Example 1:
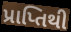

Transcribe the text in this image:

પ્રાપ્તિથી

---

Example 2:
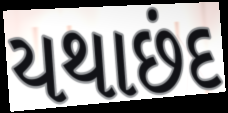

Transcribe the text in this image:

યથાછંદ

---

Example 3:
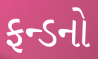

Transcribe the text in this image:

ફન્ડનો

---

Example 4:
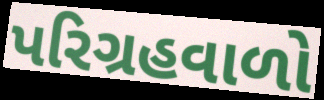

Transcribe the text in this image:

પરિગ્રહવાળો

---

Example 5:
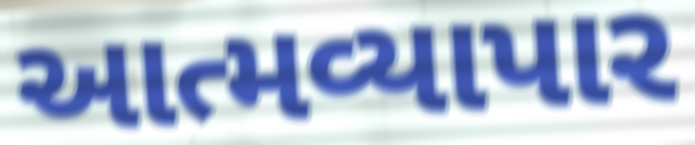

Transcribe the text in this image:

આત્મવ્યાપાર